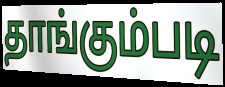
தாங்கும்படி